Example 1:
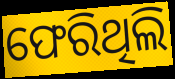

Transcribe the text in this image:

ଫେରିଥିଲି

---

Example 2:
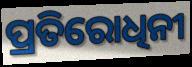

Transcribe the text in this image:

ପ୍ରତିରୋଧିନୀ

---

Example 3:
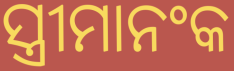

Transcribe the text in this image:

ସ୍ତ୍ରୀମାନଂକ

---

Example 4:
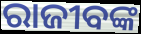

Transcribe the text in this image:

ରାଜୀବଙ୍କ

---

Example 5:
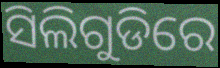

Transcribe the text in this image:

ସିଲିଗୁଡିରେ